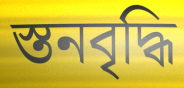
স্তনবৃদ্ধি